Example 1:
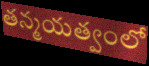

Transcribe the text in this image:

తన్మయత్వంలో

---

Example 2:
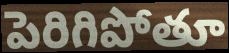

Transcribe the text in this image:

పెరిగిపోతూ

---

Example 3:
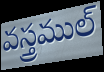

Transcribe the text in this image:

వస్త్రముల్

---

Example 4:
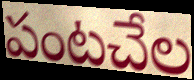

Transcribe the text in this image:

పంటచేల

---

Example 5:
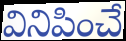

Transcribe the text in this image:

వినిపించే